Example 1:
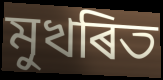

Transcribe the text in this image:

মুখৰিত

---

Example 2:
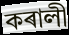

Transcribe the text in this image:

কৰালী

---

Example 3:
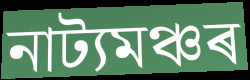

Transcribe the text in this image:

নাট্যমঞ্চৰ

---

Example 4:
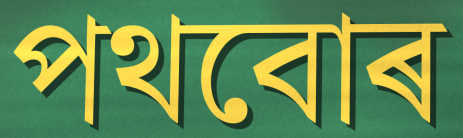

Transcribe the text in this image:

পথবোৰ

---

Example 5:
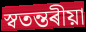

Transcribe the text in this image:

স্বতন্তৰীয়া